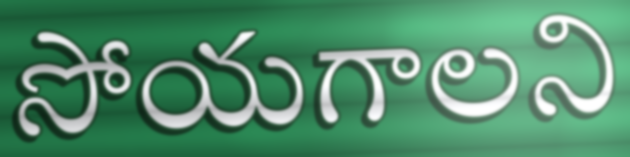
సోయగాలని